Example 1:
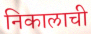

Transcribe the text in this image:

निकालाची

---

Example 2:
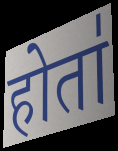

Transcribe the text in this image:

होता॑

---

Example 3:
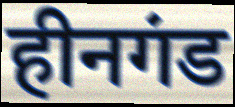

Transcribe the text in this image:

हीनगंड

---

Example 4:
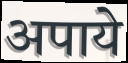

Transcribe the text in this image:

अपाये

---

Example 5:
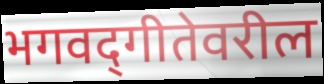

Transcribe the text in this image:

भगवद्‌गीतेवरील